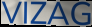
VIZAG